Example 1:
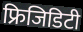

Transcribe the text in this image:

फ्रिजिडिटी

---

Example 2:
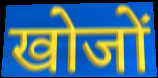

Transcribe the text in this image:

खोजों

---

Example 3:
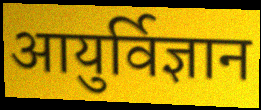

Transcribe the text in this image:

आयुर्विज्ञान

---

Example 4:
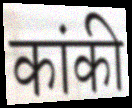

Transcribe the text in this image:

कांकी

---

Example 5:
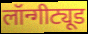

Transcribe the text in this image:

लॉन्गीट्यूड